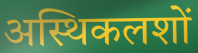
अस्थिकलशों